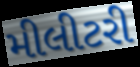
મીલીટરી